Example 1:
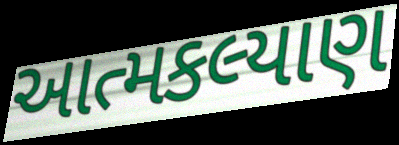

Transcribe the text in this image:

આત્મકલ્યાણ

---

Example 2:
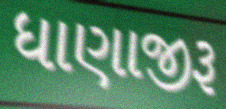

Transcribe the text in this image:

ધાણાજીરૂ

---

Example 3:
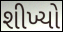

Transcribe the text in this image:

શીખ્યો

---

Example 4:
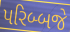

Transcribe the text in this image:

પરિબ્બજે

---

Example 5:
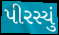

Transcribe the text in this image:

પીરસ્યું